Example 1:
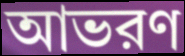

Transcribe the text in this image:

আভরণ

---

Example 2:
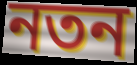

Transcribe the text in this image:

নতন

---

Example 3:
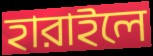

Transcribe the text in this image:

হারাইলে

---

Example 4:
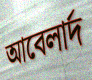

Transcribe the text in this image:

আবেলার্দ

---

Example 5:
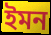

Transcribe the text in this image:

ইমন